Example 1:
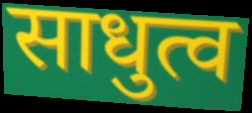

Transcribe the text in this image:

साधुत्व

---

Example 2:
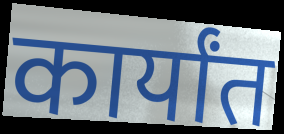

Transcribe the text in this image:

कार्यांत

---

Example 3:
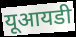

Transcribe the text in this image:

यूआयडी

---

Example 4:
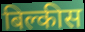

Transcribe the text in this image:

बिल्कीस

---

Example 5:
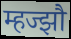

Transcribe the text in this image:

म्हज्झौ